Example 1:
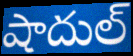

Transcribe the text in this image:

షాదుల్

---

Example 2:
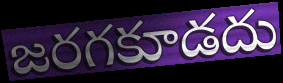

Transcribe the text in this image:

జరగకూడదు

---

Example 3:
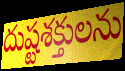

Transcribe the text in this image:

దుష్టశక్తులను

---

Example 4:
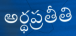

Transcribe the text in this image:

అర్థప్రతీతి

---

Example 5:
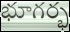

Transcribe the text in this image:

భూగర్భ